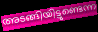
അടങ്ങിയിട്ടുണ്ടെന്ന